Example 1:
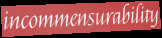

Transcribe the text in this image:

incommensurability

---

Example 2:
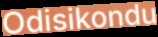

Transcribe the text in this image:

Odisikondu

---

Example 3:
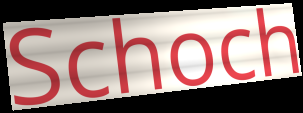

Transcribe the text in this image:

Schoch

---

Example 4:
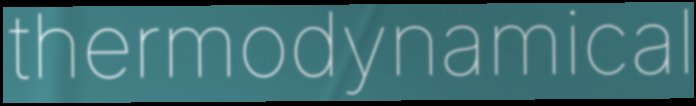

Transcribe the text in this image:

thermodynamical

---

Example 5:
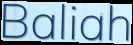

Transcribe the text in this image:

Baliah